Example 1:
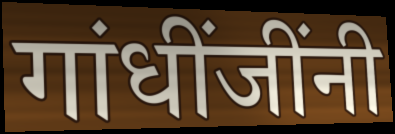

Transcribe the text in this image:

गांधींजींनी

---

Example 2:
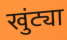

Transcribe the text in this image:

खुंट्या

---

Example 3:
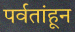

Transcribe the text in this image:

पर्वतांहून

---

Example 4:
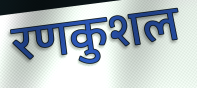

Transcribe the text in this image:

रणकुशल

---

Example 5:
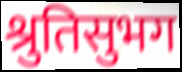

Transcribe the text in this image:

श्रुतिसुभग